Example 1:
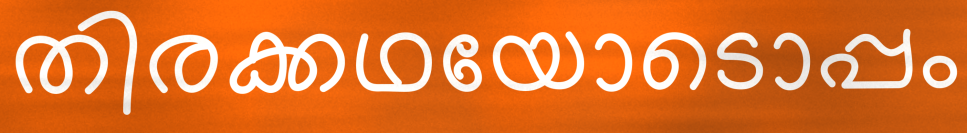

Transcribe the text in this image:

തിരക്കഥയോടൊപ്പം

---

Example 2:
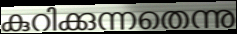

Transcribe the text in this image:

കുറിക്കുന്നതെന്നു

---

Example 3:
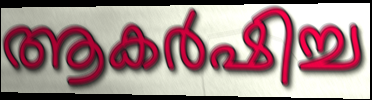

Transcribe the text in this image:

ആകർഷിച്ച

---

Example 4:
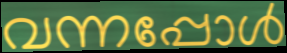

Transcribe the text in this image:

വന്നപ്പോൾ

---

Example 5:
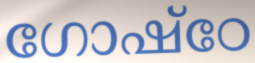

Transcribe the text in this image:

ഗോഷ്ഠേ